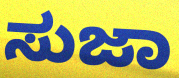
ಸುಜಾ